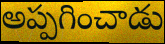
అప్పగించాడు